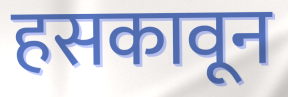
हसकावून